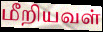
மீறியவள்